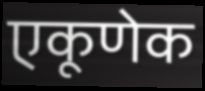
एकूणेक